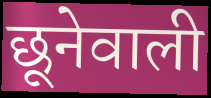
छूनेवाली